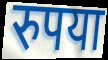
रुपया